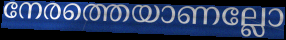
നേരത്തെയാണല്ലോ